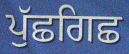
ਪੁੱਛਗਿਛ